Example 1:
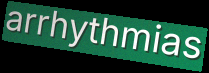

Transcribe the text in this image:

arrhythmias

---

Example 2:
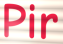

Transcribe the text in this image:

Pir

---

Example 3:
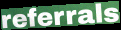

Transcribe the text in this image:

referrals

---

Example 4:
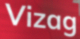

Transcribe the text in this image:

Vizag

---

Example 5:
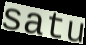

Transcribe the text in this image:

satu